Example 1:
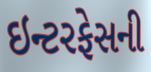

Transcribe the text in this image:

ઇન્ટરફેસની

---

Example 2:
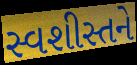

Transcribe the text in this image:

સ્વશીસ્તને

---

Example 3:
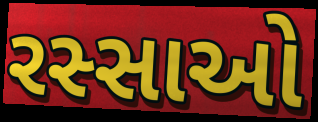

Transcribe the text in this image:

રસ્સાઓ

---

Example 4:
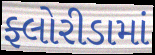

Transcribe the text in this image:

ફ્લોરીડામાં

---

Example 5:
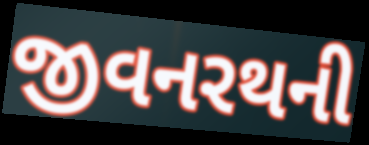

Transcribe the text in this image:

જીવનરથની